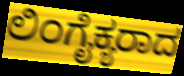
ಲಿಂಗೈಕ್ಯರಾದ